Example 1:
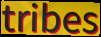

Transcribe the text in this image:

tribes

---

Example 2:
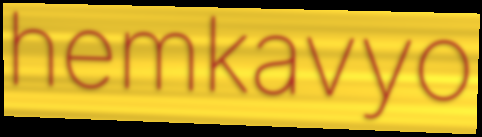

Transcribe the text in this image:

hemkavyo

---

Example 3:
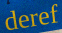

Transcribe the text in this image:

deref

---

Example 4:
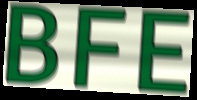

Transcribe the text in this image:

BFE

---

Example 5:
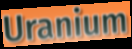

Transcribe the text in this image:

Uranium